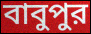
বাবুপুর